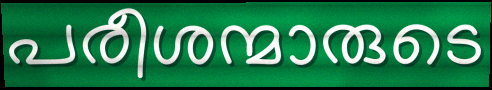
പരീശന്മാരുടെ